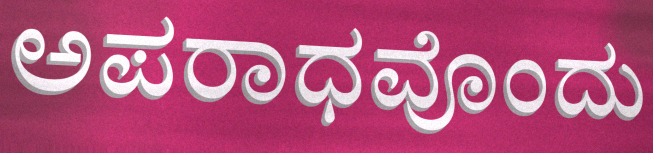
ಅಪರಾಧವೊಂದು